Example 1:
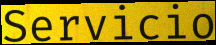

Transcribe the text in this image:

Servicio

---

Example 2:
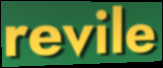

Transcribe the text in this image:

revile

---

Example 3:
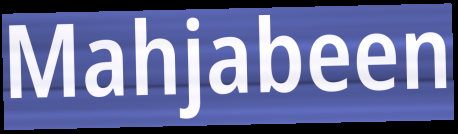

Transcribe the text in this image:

Mahjabeen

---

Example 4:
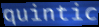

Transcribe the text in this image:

quintic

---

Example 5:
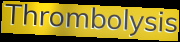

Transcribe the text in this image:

Thrombolysis